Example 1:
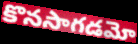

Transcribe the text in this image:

కొనసాగడమో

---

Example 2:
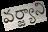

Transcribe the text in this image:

వర్జ్యాని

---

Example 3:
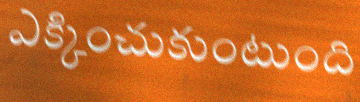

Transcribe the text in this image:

ఎక్కించుకుంటుంది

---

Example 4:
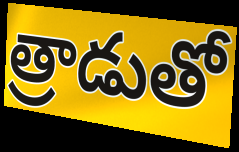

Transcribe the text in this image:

త్రాడుతో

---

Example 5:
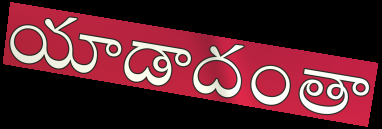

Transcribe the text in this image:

యాడాదంతా